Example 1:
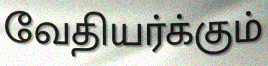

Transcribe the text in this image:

வேதியர்க்கும்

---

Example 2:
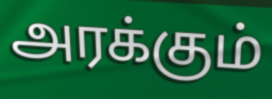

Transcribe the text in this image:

அரக்கும்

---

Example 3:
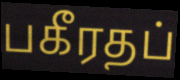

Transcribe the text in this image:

பகீரதப்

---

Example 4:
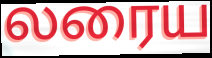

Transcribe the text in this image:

லரைய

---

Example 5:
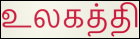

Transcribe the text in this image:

உலகத்தி